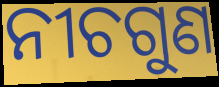
ନୀଚଗୁଣ